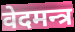
वेदमन्त्र